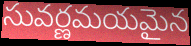
సువర్ణమయమైన